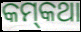
କମ୍‌କଥା